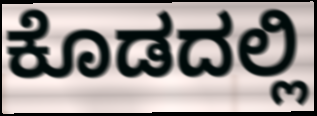
ಕೊಡದಲ್ಲಿ